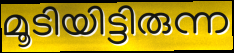
മൂടിയിട്ടിരുന്ന